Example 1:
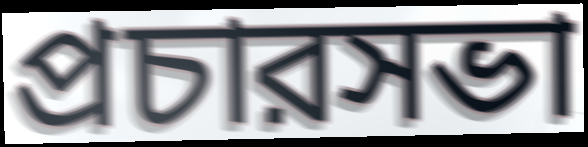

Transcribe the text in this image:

প্রচারসভা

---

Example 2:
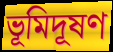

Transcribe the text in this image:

ভূমিদূষণ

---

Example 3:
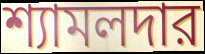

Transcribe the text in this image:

শ্যামলদার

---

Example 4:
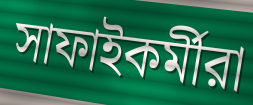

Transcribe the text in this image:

সাফাইকর্মীরা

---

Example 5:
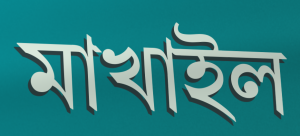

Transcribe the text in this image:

মাখাইল